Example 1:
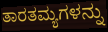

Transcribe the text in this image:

ತಾರತಮ್ಯಗಳನ್ನು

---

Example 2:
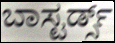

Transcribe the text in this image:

ಬಾಸ್ಟರ್ಡ್ಸ್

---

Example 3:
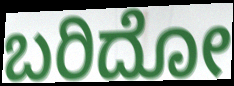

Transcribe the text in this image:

ಬರಿದೋ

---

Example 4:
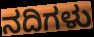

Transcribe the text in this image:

ನದಿಗಳು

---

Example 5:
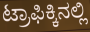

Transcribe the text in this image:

ಟ್ರಾಫಿಕ್ಕಿನಲ್ಲಿ